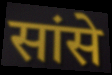
सांसे